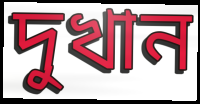
দুখান